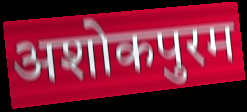
अशोकपुरम